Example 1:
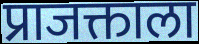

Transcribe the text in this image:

प्राजक्ताला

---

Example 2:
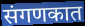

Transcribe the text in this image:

संगणकात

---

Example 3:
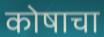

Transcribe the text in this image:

कोषाचा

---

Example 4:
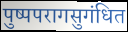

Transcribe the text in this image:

पुष्पपरागसुगंधित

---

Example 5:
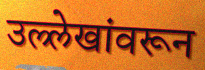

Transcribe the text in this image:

उल्लेखांवरून